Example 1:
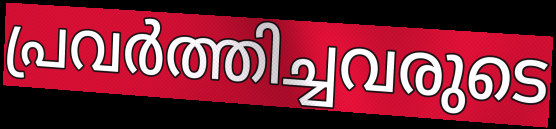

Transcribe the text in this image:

പ്രവർത്തിച്ചവരുടെ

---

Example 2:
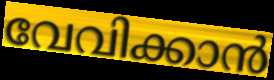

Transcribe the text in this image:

വേവിക്കാൻ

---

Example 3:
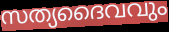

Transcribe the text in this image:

സത്യദൈവവും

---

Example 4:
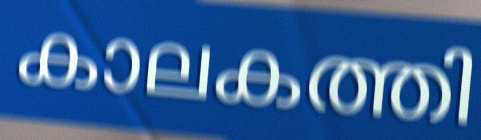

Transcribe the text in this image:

കാലകത്തി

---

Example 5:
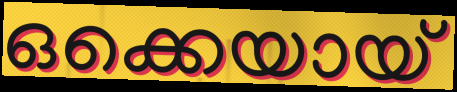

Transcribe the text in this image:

ഒക്കെയായ്